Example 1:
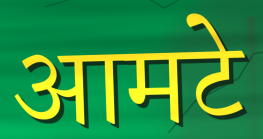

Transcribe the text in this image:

आमटे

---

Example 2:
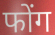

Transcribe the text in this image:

फोंग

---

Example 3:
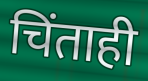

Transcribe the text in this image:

चिंताही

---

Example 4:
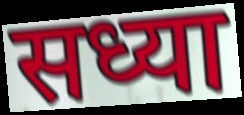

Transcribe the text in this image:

सध्या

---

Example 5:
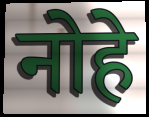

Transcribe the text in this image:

नोहे